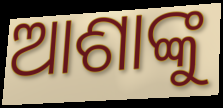
ଆଶାଙ୍କୁ